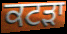
ਕਟੜਾ